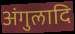
अंगुलादि